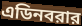
এডিনবরার